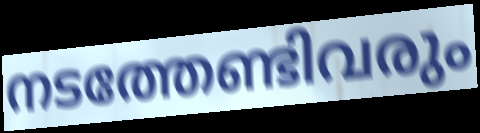
നടത്തേണ്ടിവരും